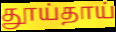
தூய்தாய்